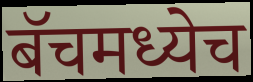
बॅचमध्येच